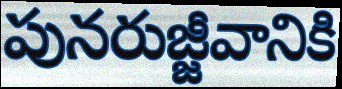
పునరుజ్జీవానికి